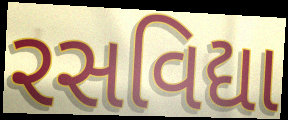
રસવિદ્યા